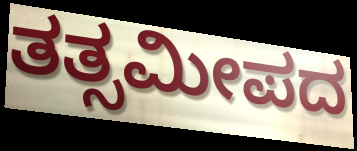
ತತ್ಸಮೀಪದ